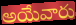
అయేవారు